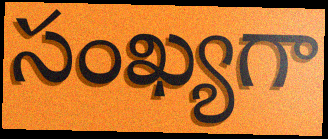
సంఖ్యగా